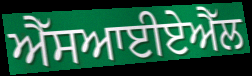
ਐੱਸਆਈਏਐੱਲ